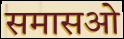
समासओ